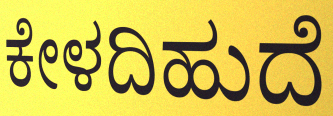
ಕೇಳದಿಹುದೆ